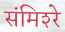
संमिश्रे